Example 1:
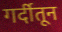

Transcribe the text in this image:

गर्दीतून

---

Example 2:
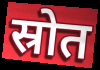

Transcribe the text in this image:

स्रोत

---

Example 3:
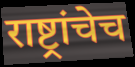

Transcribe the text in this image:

राष्ट्रांचेच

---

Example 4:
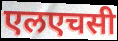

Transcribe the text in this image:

एलएचसी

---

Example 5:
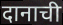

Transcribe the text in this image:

दानाची